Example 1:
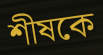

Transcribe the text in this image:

শীষকে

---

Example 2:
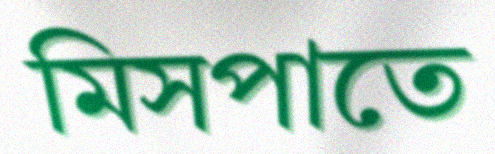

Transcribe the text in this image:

মিসপাতে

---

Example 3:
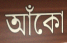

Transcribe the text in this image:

আঁকো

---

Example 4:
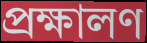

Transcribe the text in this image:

প্রক্ষালণ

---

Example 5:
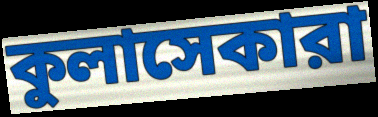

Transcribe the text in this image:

কুলাসেকারা